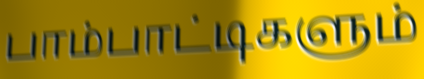
பாம்பாட்டிகளும்